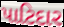
પાટિદાર